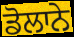
ਡੋਲਾਨੇ